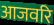
आजवरि